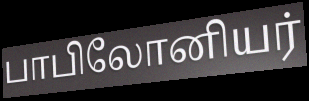
பாபிலோனியர்